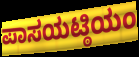
ಪಾಸಯಟ್ಠಿಯಂ